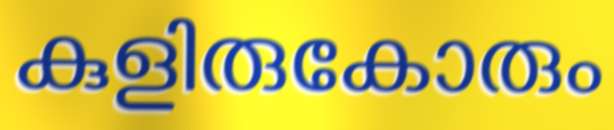
കുളിരുകോരും